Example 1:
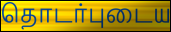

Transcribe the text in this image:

தொடர்புடைய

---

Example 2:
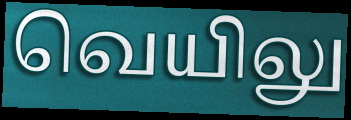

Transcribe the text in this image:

வெயிலு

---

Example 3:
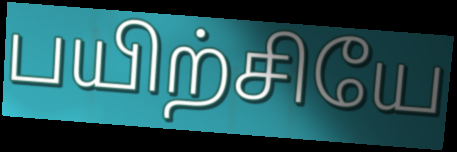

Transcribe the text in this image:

பயிற்சியே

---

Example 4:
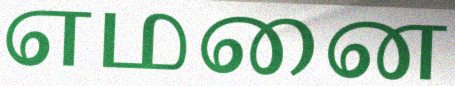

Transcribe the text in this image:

எமனை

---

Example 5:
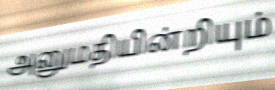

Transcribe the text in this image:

அனுமதியின்றியும்